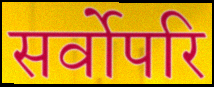
सर्वोपरि